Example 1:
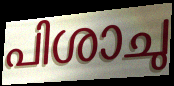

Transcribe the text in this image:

പിശാചു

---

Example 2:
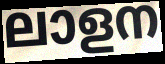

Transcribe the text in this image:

ലാളന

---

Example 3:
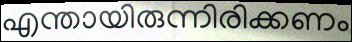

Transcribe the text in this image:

എന്തായിരുന്നിരിക്കണം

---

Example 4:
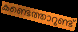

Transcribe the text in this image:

കണ്ടെത്താറുണ്ട്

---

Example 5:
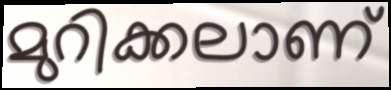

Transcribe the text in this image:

മുറിക്കലാണ്